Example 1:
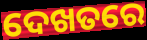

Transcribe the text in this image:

ଦେଖତରେ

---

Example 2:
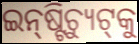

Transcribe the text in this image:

ଇନ୍‌ଷ୍ଟିଚ୍ୟୁଟ୍‌କୁ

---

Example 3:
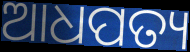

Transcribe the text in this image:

ଆଧପତ୍ୟ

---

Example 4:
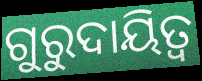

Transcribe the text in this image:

ଗୁରୁଦାୟିତ୍ୱ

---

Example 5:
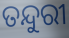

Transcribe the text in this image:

ତନ୍ଦୁରୀ